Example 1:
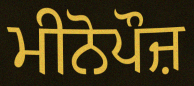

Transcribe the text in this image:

ਮੀਨੋਪੌਜ਼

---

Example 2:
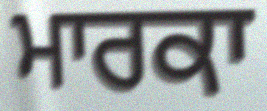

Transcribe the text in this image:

ਮਾਰਕਾ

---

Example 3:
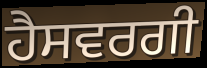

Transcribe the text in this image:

ਹੈਸਵਰਗੀ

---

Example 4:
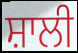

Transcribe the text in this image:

ਸ਼ਾਲੀ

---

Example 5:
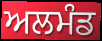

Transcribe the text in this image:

ਅਲਮੰਡ